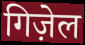
गिज़ेल